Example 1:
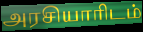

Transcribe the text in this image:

அரசியாரிடம்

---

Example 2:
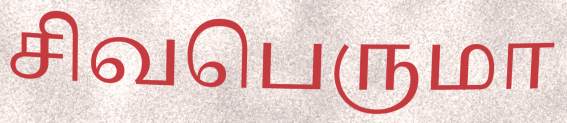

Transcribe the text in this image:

சிவபெருமா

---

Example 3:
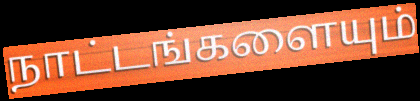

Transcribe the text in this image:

நாட்டங்களையும்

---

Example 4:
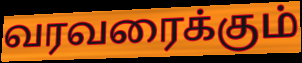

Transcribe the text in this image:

வரவரைக்கும்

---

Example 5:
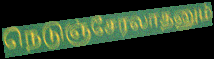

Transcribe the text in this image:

நெடுஞ்சேரலாதனும்